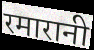
रमारानी